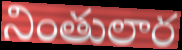
నింతులార